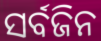
ସର୍ବଜିନ